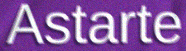
Astarte